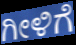
ಗೀಳಿಗೆ